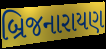
બ્રિજનારાયણ